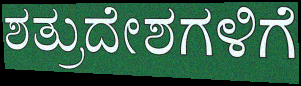
ಶತ್ರುದೇಶಗಳಿಗೆ